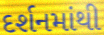
દર્શનમાંથી